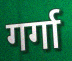
गर्गा